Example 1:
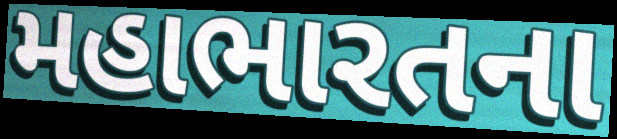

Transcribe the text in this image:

મહાભારતના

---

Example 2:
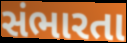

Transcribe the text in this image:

સંભારતા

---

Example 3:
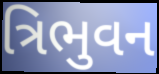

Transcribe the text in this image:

ત્રિભુવન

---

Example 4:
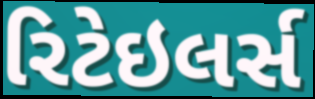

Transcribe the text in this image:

રિટેઇલર્સ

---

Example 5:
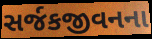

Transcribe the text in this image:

સર્જકજીવનના